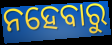
ନହେବାରୁ